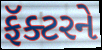
ફૅક્ટરને